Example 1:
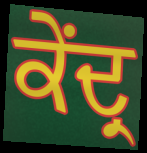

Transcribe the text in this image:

ਕੇਂਦ੍ਰ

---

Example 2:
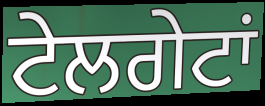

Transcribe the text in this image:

ਟੇਲਗੇਟਾਂ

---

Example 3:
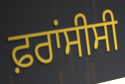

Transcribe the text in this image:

ਫ਼ਰਾਂਸੀਸੀ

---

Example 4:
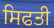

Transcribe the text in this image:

ਸਿਫਤੀ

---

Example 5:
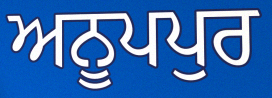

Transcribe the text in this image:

ਅਨੂਪਪੁਰ